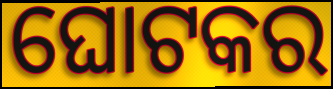
ଘୋଟକର